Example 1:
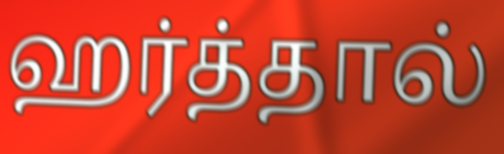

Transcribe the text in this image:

ஹர்த்தால்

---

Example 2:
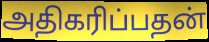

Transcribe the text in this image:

அதிகரிப்பதன்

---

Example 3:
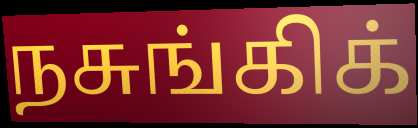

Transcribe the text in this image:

நசுங்கிக்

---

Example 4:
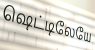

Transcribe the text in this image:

ஷெட்டிலேயே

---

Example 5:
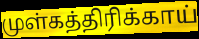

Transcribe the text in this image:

முள்கத்திரிக்காய்